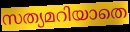
സത്യമറിയാതെ